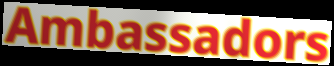
Ambassadors